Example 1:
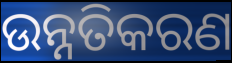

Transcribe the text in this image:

ଉନ୍ନତିକରଣ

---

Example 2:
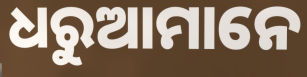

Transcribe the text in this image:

ଧରୁଆମାନେ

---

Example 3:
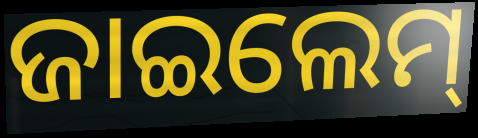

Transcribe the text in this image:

ଜାଇଲେମ୍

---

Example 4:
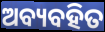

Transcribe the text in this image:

ଅବ୍ୟବହିତ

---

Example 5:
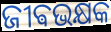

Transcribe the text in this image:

ଜୀଵଭକ୍ଷକ